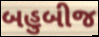
બહુબીજ